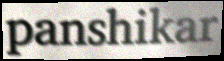
panshikar